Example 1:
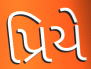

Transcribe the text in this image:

પ્રિયે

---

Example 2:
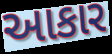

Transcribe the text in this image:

આકાર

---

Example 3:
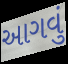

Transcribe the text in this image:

આગવું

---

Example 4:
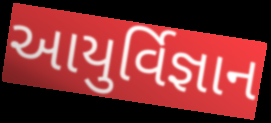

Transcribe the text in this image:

આયુર્વિજ્ઞાન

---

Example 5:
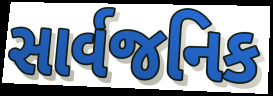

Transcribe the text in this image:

સાર્વજનિક